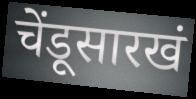
चेंडूसारखं